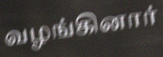
வழங்கினார்